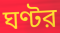
ঘণ্টর